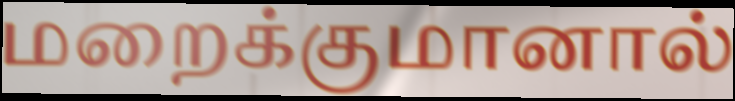
மறைக்குமானால்